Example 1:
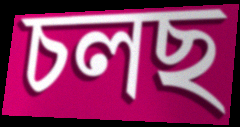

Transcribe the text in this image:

চলছ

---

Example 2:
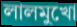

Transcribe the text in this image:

লালমুখো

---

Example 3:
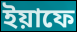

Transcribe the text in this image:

ইয়াফে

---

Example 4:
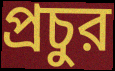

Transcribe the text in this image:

প্রচুর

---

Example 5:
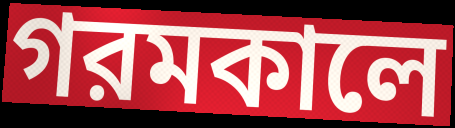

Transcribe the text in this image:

গরমকালে